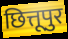
छित्तूपुर